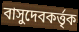
বাসুদেবকর্ত্তৃক